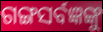
ଗଙ୍ଗସର୍ବଜ୍ଞଙ୍କୁ